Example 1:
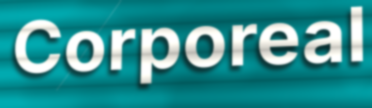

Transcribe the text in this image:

Corporeal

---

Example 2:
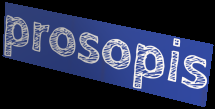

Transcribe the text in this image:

prosopis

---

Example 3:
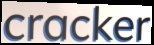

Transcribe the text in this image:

cracker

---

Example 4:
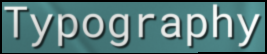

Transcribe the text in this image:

Typography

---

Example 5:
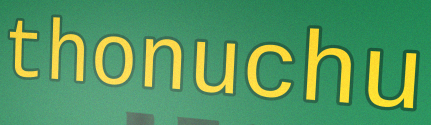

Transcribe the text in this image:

thonuchu